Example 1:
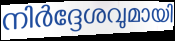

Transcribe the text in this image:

നിർദ്ദേശവുമായി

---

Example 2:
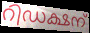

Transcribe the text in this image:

റിഡക്ഷന്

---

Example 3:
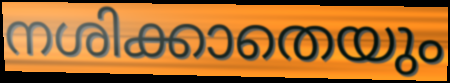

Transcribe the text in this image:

നശിക്കാതെയും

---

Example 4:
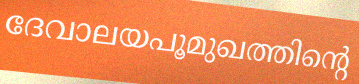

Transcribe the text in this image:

ദേവാലയപൂമുഖത്തിന്റെ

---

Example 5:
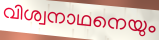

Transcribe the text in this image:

വിശ്വനാഥനെയും